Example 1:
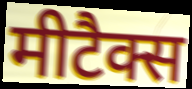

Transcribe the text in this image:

मीटैक्स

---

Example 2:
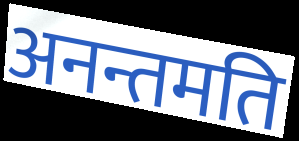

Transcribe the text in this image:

अनन्तमति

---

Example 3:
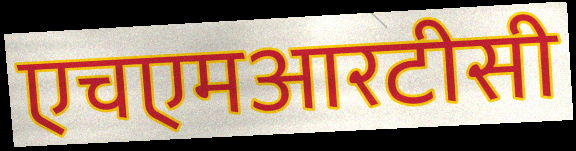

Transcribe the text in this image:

एचएमआरटीसी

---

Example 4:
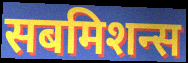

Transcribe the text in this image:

सबमिशन्स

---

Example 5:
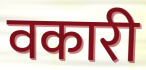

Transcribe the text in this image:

वकारी